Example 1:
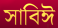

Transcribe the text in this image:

সাবিঈ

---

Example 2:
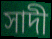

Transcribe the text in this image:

সাদী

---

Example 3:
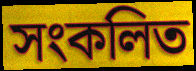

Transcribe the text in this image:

সংকলিত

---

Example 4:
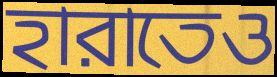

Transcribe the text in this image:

হারাতেও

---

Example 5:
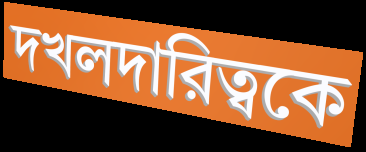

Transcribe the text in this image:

দখলদারিত্বকে